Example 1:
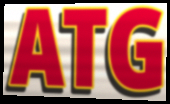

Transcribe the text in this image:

ATG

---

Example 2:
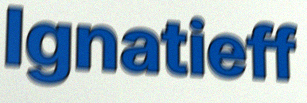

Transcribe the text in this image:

Ignatieff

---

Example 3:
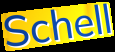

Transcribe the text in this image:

Schell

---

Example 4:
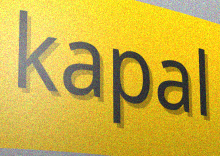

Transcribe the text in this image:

kapal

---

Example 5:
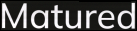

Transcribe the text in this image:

Matured